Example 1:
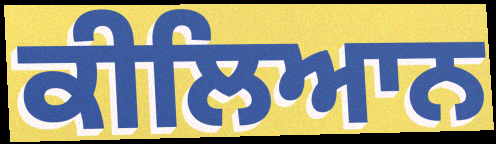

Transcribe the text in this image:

ਕੀਲਿਆਨ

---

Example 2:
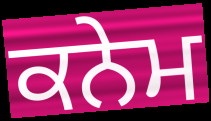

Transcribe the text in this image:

ਕਨੇਮ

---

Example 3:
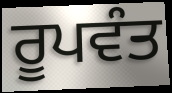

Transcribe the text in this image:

ਰੂਪਵੰਤ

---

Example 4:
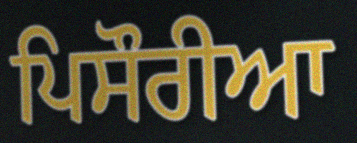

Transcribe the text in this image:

ਪਿਸੌਰੀਆ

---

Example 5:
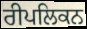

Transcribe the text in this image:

ਰੀਪਲਿਕਨ